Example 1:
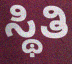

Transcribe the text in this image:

ಸ್ಥಿತಿ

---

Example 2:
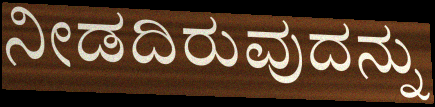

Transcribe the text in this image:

ನೀಡದಿರುವುದನ್ನು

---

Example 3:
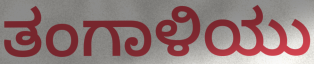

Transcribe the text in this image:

ತಂಗಾಳಿಯು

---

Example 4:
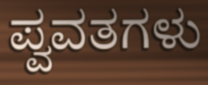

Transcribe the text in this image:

ಪ್ವವತಗಳು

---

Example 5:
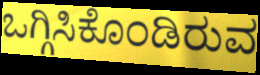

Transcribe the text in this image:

ಒಗ್ಗಿಸಿಕೊಂಡಿರುವ